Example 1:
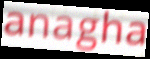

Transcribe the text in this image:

anagha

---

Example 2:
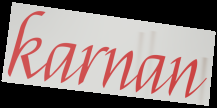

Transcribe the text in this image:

karnan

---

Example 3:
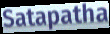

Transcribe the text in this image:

Satapatha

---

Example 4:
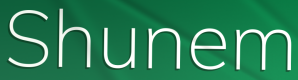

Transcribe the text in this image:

Shunem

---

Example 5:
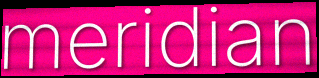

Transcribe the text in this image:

meridian